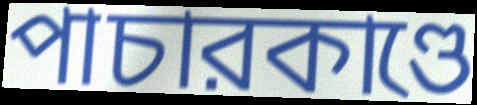
পাচারকাণ্ডে